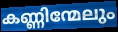
കണ്ണിന്മേലും